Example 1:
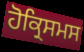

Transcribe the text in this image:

ਹੋਕ੍ਰਿਸਮਸ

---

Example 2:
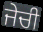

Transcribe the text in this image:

ਜੇਚੀ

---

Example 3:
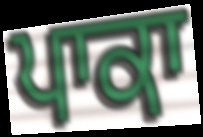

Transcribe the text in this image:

ਪਾਕਾ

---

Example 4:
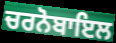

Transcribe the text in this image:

ਚਰਨੋਬਾਇਲ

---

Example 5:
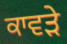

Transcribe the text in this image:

ਕਾਵੜੇ